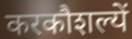
करकौशल्यें